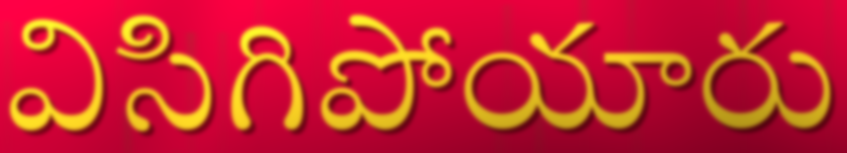
విసిగిపోయారు